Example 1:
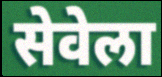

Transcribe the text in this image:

सेवेला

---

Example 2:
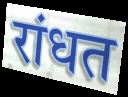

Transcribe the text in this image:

रांधत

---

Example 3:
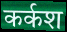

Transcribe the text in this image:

कर्कश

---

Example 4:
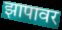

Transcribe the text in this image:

झापावर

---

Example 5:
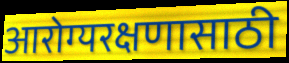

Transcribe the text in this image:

आरोग्यरक्षणासाठी